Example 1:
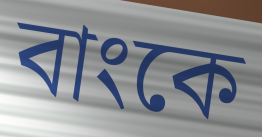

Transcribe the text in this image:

বাংকে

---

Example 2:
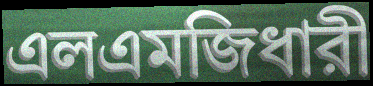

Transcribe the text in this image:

এলএমজিধারী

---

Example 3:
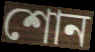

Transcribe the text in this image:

শোন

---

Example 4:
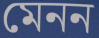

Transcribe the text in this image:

মেনন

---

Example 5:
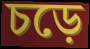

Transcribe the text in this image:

চড়ে